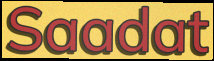
Saadat